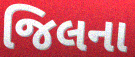
જિલના